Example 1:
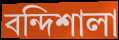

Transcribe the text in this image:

বন্দিশালা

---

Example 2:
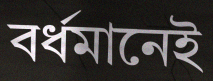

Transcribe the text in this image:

বর্ধমানেই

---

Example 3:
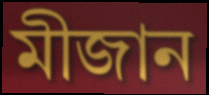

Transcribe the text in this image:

মীজান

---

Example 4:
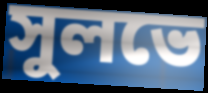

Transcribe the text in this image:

সুলভে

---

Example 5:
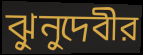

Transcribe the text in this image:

ঝুনুদেবীর